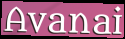
Avanai